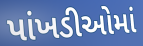
પાંખડીઓમાં